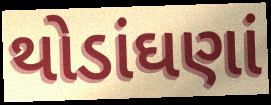
થોડાંઘણાં